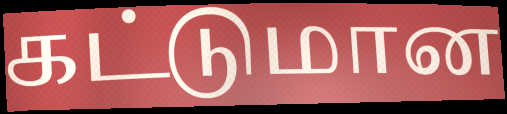
கட்டுமான